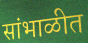
सांभाळीत